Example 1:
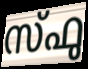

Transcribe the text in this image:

സ്ഫു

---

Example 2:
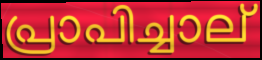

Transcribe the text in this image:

പ്രാപിച്ചാല്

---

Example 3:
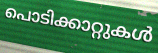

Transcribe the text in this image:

പൊടിക്കാറ്റുകൾ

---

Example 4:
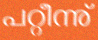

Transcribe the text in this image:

പറ്റീന്നു്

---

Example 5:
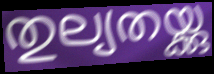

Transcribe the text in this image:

തുല്യതയ്ക്കു